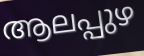
ആലപ്പുഴ